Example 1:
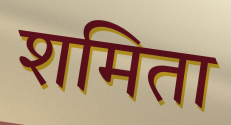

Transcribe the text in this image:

शमिता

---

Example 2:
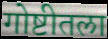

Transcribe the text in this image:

गोष्टीतला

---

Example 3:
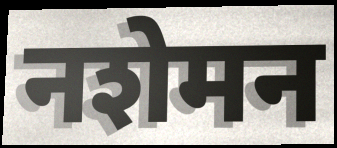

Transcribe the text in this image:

नशेमन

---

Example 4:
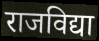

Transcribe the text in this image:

राजविद्या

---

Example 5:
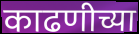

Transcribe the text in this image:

काढणीच्या